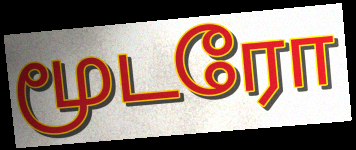
மூடரோ